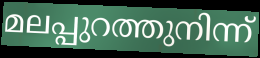
മലപ്പുറത്തുനിന്ന്